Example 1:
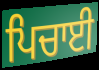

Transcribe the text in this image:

ਪਿਚਾਈ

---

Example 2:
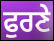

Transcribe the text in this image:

ਫੁਰਣੇ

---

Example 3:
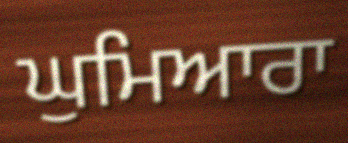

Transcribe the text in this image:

ਘੁਮਿਆਰਾ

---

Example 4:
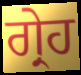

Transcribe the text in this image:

ਗ੍ਰੇਹ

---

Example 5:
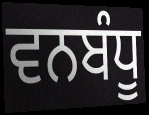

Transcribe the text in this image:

ਵਨਬੰਧੂ